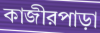
কাজীরপাড়া